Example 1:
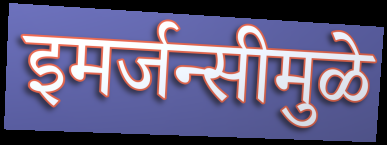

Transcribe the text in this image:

इमर्जन्सीमुळे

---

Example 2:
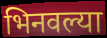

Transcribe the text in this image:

भिनवल्या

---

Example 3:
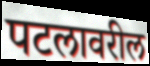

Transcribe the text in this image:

पटलावरील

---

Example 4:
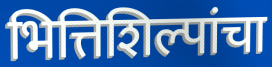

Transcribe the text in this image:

भित्तिशिल्पांचा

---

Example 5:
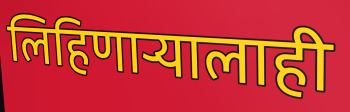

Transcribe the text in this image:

लिहिणाऱ्यालाही